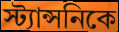
স্ট্যান্সনিকে